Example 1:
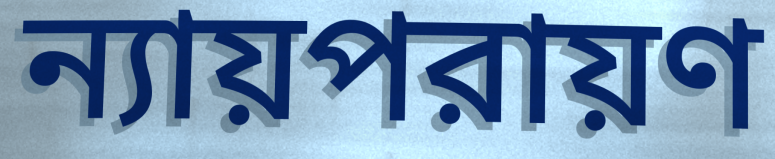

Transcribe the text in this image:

ন্যায়পরায়ণ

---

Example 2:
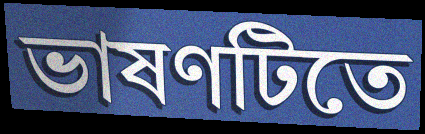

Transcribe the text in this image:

ভাষণটিতে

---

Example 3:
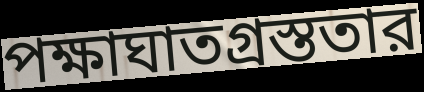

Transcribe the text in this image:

পক্ষাঘাতগ্রস্ততার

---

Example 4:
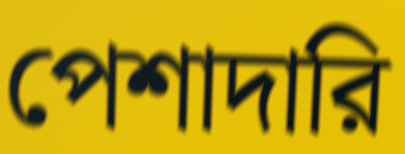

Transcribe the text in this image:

পেশাদারি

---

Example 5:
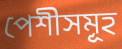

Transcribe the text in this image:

পেশীসমূহ